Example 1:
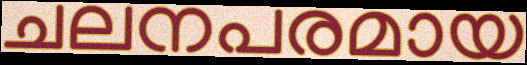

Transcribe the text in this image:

ചലനപരമായ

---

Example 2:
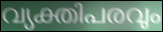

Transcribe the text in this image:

വ്യക്തിപരവും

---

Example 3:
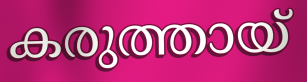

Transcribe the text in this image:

കരുത്തായ്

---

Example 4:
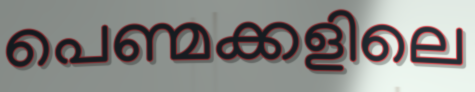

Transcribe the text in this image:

പെണ്മക്കളിലെ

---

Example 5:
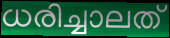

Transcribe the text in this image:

ധരിച്ചാലത്